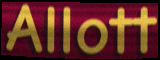
Allott